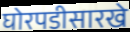
घोरपडीसारखे